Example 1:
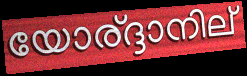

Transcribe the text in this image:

യോര്ദ്ദാനില്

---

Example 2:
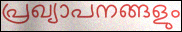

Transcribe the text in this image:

പ്രഖ്യാപനങ്ങളും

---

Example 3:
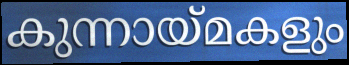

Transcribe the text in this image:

കുന്നായ്മകളും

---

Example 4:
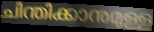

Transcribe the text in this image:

ചിന്തിക്കാനുമുള്ള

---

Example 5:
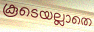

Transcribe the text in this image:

കൂടെയല്ലാതെ